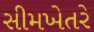
સીમખેતરે